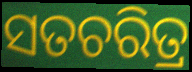
ସତଚରିତ୍ର